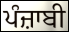
ਪੰਜ਼ਾਬੀ